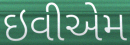
ઇવીએમ